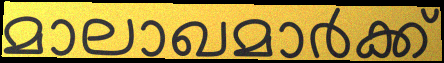
മാലാഖമാർക്ക്